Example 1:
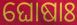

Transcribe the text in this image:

ଘୋଷାଃ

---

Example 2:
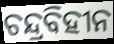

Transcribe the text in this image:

ଚନ୍ଦ୍ରବିହୀନ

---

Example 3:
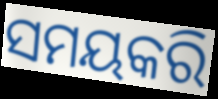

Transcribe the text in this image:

ସମୟକରି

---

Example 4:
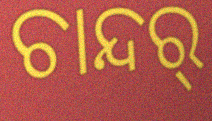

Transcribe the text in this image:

ଚାନ୍ଦର୍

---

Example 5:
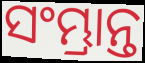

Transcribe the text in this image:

ସଂମ୍ଭ୍ରାନ୍ତ